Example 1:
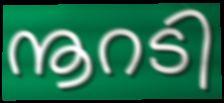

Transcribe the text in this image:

നൂറടി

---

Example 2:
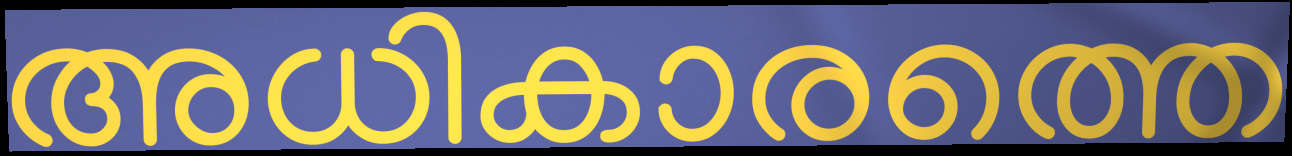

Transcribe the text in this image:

അധികാരത്തെ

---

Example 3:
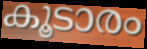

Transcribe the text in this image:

കൂടാരം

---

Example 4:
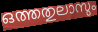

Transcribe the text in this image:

ഒത്തതുലാസും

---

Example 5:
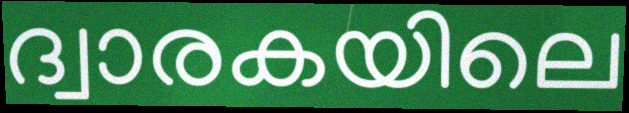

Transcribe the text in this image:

ദ്വാരകയിലെ